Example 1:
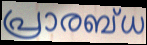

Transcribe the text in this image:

പ്രാരബ്ധ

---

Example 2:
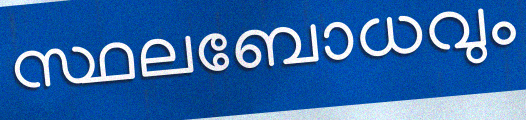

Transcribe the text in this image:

സ്ഥലബോധവും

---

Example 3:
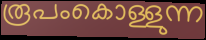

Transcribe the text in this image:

രൂപംകൊള്ളുന്ന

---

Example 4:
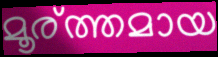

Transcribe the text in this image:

മൂര്ത്തമായ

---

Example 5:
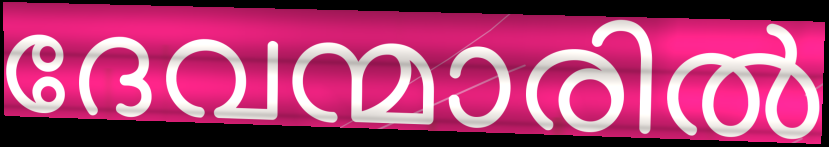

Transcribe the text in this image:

ദേവന്മാരിൽ